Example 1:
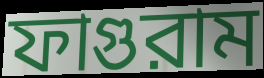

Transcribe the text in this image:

ফাগুরাম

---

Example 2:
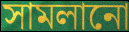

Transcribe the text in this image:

সামলানো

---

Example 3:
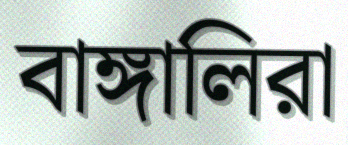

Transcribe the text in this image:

বাঙ্গালিরা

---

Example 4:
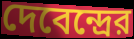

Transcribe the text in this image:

দেবেন্দ্রের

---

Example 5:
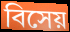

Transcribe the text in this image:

বিসেয়